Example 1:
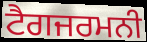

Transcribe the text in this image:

ਟੈਗਜਰਮਨੀ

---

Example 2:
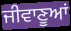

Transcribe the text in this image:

ਜੀਵਾਣੂਆਂ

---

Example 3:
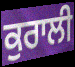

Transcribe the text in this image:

ਕੁਰਾਲੀ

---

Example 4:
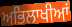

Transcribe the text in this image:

ਅਭਿਲਾਖੀਆਂ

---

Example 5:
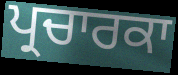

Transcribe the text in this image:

ਪ੍ਰਚਾਰਕਾ